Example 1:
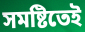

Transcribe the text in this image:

সমষ্টিতেই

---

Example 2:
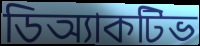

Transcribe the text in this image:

ডিঅ্যাকটিভ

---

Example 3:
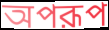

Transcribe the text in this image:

অপরূপ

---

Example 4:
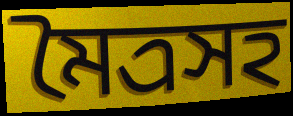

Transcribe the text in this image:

মৈত্রসহ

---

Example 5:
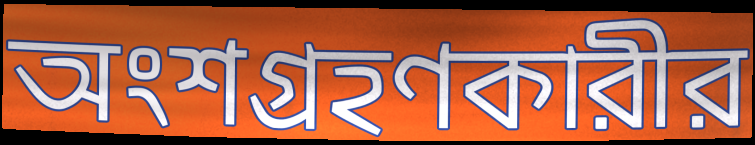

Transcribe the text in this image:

অংশগ্রহণকারীর